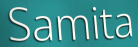
Samita